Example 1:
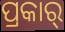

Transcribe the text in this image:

ପ୍ରକାର୍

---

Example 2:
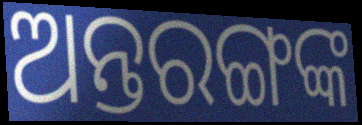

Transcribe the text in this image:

ଅନ୍ତରଙ୍ଗଙ୍କ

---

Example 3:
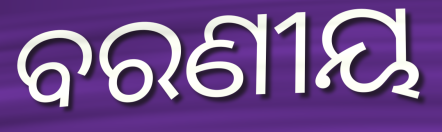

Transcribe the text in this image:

ବରଣୀୟ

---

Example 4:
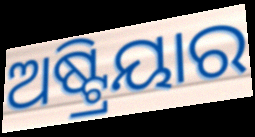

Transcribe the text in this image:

ଅଷ୍ଟ୍ରିୟାର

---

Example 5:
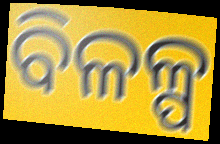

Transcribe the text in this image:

ବିଳଳ୍ପ